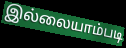
இல்லையாம்படி